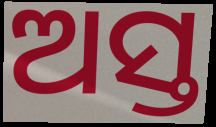
ଅସ୍ତ